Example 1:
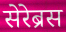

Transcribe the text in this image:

सेरेब्रस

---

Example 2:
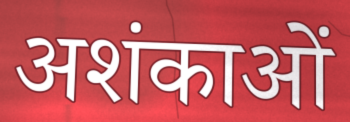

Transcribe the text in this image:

अशंकाओं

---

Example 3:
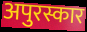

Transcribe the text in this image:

अपुरस्कार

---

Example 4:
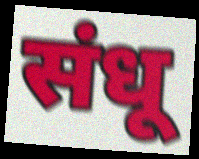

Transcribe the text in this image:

संधू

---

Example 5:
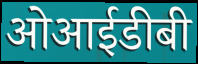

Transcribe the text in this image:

ओआईडीबी